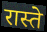
रास्ते